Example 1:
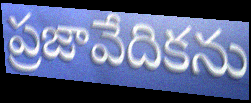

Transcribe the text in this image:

ప్రజావేదికను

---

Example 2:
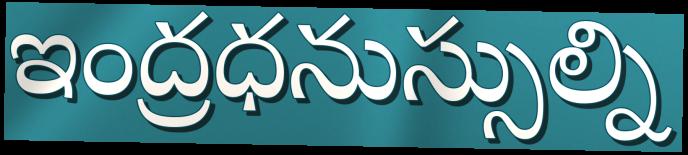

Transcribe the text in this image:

ఇంద్రధనుస్సుల్ని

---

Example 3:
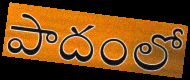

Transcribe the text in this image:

పాదంలో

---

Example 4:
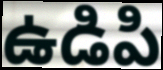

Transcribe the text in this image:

ఉడిపి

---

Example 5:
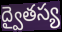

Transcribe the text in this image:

ద్వైతస్య